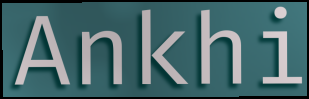
Ankhi